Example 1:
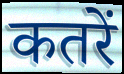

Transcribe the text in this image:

कतरें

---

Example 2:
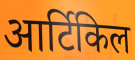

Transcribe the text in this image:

आर्टिकिल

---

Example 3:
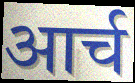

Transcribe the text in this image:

आर्च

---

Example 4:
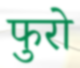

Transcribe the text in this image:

फुरो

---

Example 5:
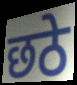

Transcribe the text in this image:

छठे